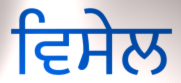
ਵਿਸੇਲ